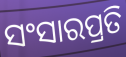
ସଂସାରପ୍ରତି